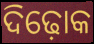
ଦିଢ଼ୋକ